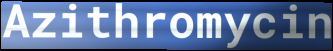
Azithromycin